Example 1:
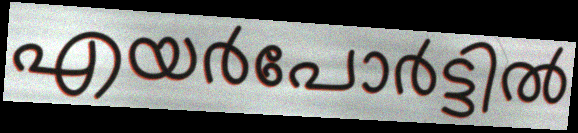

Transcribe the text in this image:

എയർപോർട്ടിൽ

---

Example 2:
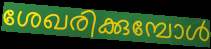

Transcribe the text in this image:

ശേഖരിക്കുമ്പോൾ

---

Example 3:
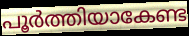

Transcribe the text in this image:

പൂർത്തിയാകേണ്ട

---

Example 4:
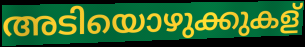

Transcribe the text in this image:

അടിയൊഴുക്കുകള്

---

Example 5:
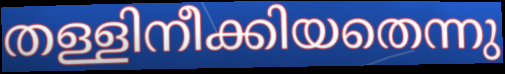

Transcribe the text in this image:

തള്ളിനീക്കിയതെന്നു